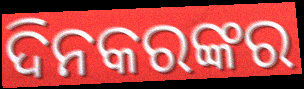
ଦିନକରଙ୍କର